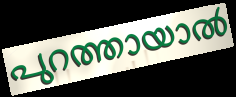
പുറത്തായാൽ